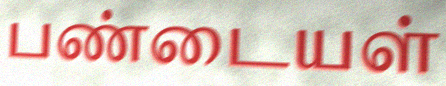
பண்டையள்